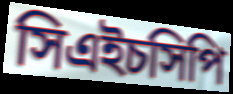
সিএইচসিপি